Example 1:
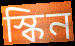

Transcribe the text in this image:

স্কিন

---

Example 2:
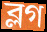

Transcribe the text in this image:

ব্লগ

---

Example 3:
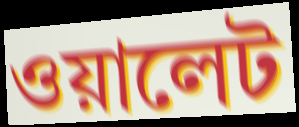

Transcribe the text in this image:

ওয়ালেট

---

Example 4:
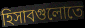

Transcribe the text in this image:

হিসাবগুলোতে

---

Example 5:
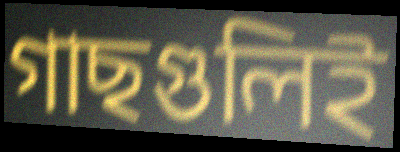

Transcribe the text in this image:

গাছগুলিই